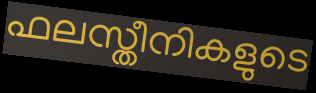
ഫലസ്തീനികളുടെ